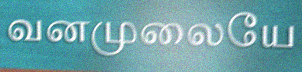
வனமுலையே